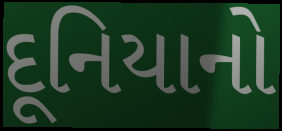
દૂનિયાનો